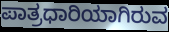
ಪಾತ್ರಧಾರಿಯಾಗಿರುವ